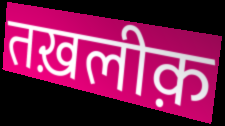
तख़लीक़